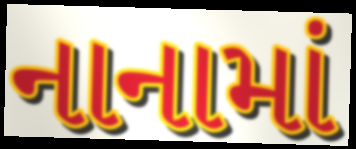
નાનામાં